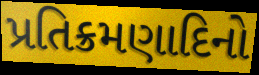
પ્રતિક્રમણાદિનો